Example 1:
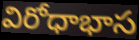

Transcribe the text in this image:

విరోధాభాస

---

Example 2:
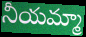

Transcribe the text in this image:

నీయమ్మా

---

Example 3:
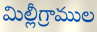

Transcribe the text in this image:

మిల్లీగ్రాముల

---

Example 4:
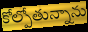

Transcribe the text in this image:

కోల్పోతున్నాను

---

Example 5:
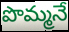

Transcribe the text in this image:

పొమ్మనే